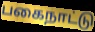
பகைநாட்டு